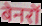
बेनरों